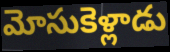
మోసుకెళ్లాడు